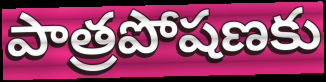
పాత్రపోషణకు